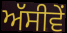
ਅੱਸੀਵੇਂ